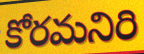
కోరమనిరి